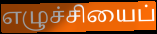
எழுச்சியைப்